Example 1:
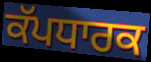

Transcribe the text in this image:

ਕੱਪਧਾਰਕ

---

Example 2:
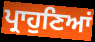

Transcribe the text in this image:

ਪ੍ਰਾਹੁਣਿਆਂ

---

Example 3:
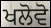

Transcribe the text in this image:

ਖਲੋਵੋ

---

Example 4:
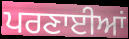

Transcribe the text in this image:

ਪਰਣਾਈਆਂ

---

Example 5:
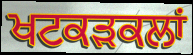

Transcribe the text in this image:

ਖਟਕੜਕਲਾਂ